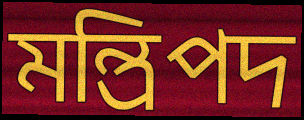
মন্ত্রিপদ